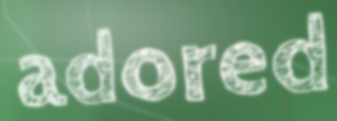
adored